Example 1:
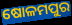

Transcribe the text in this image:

ଷୋଳମପୁର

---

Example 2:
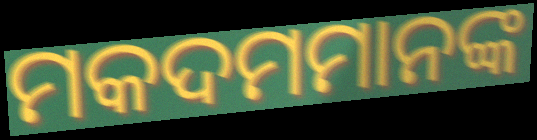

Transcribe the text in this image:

ମକଦମମାନଙ୍କ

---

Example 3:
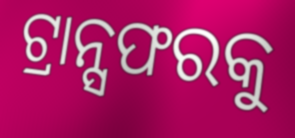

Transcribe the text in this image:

ଟ୍ରାନ୍ସଫରକୁ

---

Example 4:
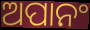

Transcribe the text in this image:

ଅପାନଂ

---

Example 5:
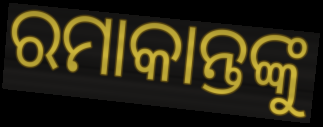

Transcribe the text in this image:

ରମାକାନ୍ତଙ୍କୁ